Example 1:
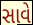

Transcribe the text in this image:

સાવે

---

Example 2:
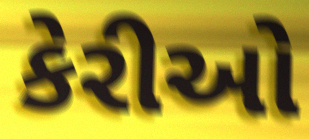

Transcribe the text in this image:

કેરીઓ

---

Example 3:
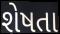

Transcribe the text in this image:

શેષતા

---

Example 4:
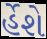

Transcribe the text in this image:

ર્હેશે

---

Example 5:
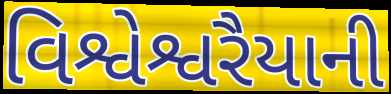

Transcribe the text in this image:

વિશ્વેશ્વરૈયાની